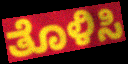
ತೊಳಿಸಿ